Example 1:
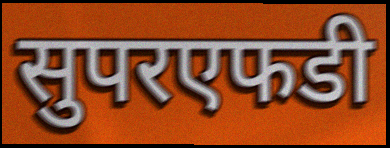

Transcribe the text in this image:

सुपरएफडी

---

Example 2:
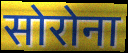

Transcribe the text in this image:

सोरोना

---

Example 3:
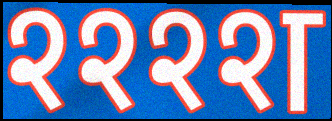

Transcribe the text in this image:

श्श्श्श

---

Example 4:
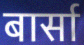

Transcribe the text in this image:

बार्सा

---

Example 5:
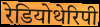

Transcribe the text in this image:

रेडियोथेरिपी